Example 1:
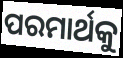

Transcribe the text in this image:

ପରମାର୍ଥକୁ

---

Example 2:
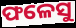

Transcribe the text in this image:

ଫଳେସୁ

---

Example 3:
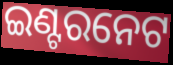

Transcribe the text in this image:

ଇଣ୍ଟରନେଟ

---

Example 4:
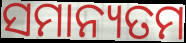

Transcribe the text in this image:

ସମାନ୍ୟତମ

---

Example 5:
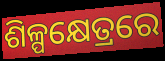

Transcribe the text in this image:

ଶିଳ୍ପକ୍ଷେତ୍ରରେ